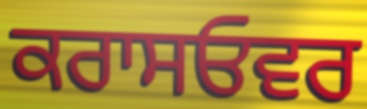
ਕਰਾਸਓਵਰ